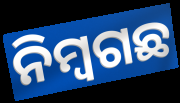
ନିମ୍ୱଗଛ